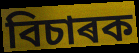
বিচাৰক